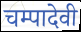
चम्पादेवी